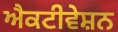
ਐਕਟੀਵੇਸ਼ਨ